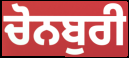
ਚੋਨਬੁਰੀ